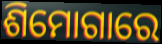
ଶିମୋଗାରେ